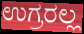
ಉಗ್ರರಲ್ಲ